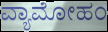
ವ್ಯಾಮೋಹಂ